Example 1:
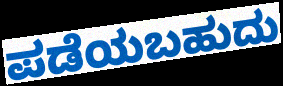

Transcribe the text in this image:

ಪಡೆಯಬಹುದು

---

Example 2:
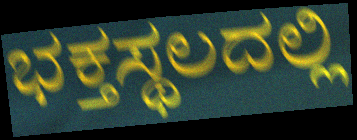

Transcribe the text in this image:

ಭಕ್ತಸ್ಥಲದಲ್ಲಿ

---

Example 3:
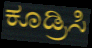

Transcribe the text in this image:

ಕೂಡ್ರಿಸಿ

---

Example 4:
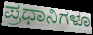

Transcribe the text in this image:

ಪ್ರಧಾನಿಗಳೂ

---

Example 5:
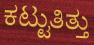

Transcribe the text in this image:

ಕಟ್ಟುತಿತ್ತು